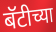
बॅटीच्या